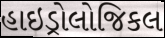
હાઇડ્રોલોજિકલ